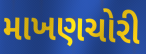
માખણચોરી